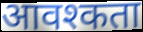
आवश्कता